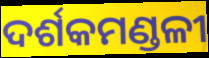
ଦର୍ଶକମଣ୍ଡଳୀ